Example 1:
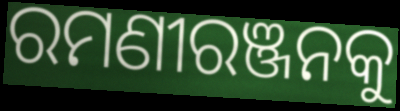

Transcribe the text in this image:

ରମଣୀରଞ୍ଜନକୁ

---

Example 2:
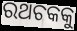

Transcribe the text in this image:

ରଥଚକକୁ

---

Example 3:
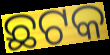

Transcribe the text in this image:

ଛଟକ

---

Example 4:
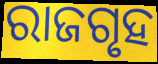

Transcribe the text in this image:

ରାଜଗୃହ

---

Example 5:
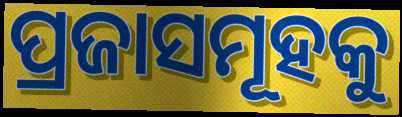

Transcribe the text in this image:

ପ୍ରଜାସମୂହକୁ